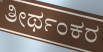
ತೀರ್ಥಂಕರ